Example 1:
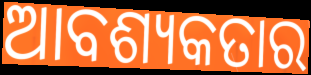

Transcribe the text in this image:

ଆବଶ୍ୟକତାର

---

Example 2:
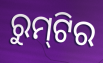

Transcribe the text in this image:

ରୁମ୍‌ଟିର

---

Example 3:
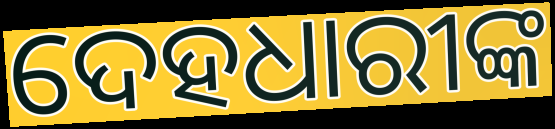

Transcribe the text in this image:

ଦେହଧାରୀଙ୍କ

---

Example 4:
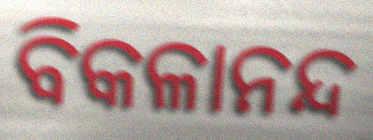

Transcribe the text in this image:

ବିକଳାନନ୍ଦ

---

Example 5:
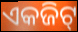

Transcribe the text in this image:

ଏକଜିଟ୍